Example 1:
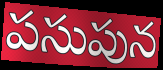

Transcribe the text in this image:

పసుపున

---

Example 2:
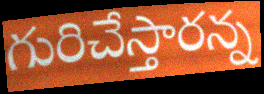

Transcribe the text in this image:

గురిచేస్తారన్న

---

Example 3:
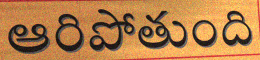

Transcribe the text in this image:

ఆరిపోతుంది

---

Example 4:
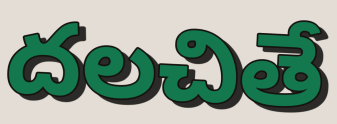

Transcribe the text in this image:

దలచితే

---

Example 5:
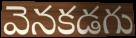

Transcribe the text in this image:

వెనకడగు